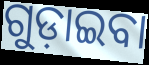
ଗୁଡ଼ାଇବା